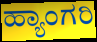
ಹ್ಯಾಂಗರಿ